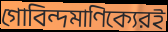
গোবিন্দমাণিক্যেরই